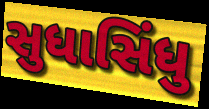
સુધાસિંધુ